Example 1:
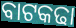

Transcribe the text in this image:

ବାଟକଢା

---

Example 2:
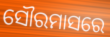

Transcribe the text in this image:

ସୌରମାସରେ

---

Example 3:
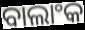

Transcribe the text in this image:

ବାଲାଂକ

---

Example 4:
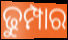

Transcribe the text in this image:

ଢୁମ୍ପାର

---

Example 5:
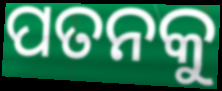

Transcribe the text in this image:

ପତନକୁ